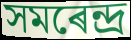
সমৰেন্দ্ৰ